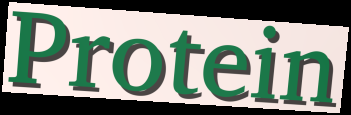
Protein